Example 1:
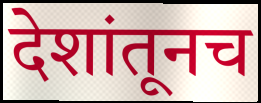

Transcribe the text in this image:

देशांतूनच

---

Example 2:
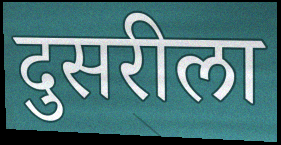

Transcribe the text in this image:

दुसरीला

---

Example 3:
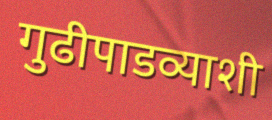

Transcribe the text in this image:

गुढीपाडव्याशी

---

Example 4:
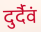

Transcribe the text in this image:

दुर्दैवं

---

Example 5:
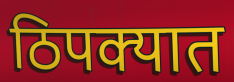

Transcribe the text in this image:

ठिपक्यात